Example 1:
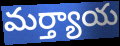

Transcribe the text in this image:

మర్త్యాయ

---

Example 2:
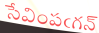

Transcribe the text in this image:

సేవింపఁగన్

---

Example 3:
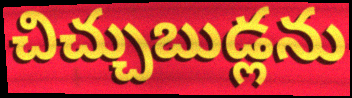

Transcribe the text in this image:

చిచ్చుబుడ్లను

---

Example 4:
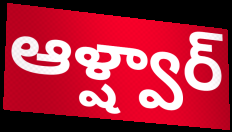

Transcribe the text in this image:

ఆళ్ష్వార్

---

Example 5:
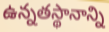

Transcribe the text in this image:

ఉన్నతస్థానాన్ని